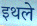
इथले